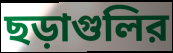
ছড়াগুলির